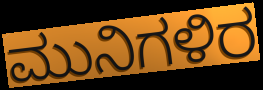
ಮುನಿಗಳಿರ